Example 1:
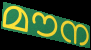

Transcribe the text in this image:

മൗന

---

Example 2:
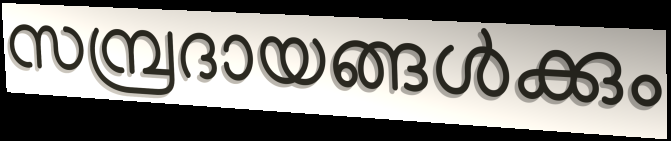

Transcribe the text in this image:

സമ്പ്രദായങ്ങൾക്കും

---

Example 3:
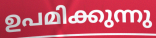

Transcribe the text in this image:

ഉപമിക്കുന്നു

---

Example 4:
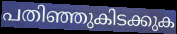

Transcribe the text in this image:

പതിഞ്ഞുകിടക്കുക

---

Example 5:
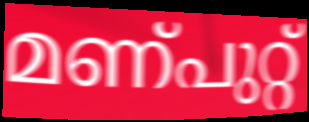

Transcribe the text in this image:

മണ്പുറ്റ്